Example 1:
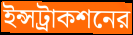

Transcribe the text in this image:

ইন্সট্রাকশনের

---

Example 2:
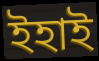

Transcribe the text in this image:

ইহাই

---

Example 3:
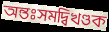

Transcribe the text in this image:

অন্তঃসমদ্বিখণ্ডক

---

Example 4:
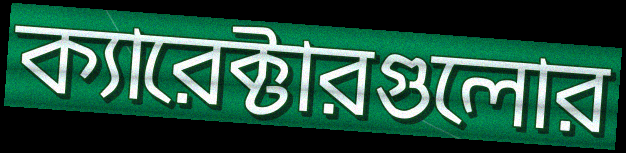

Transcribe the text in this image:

ক্যারেক্টারগুলোর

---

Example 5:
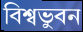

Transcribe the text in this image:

বিশ্বভুবন